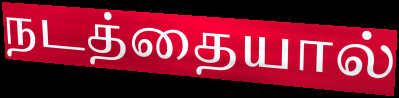
நடத்தையால்